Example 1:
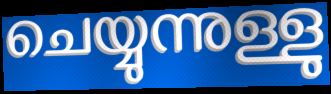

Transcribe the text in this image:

ചെയ്യുന്നുള്ളു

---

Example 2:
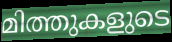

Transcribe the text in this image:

മിത്തുകളുടെ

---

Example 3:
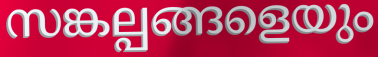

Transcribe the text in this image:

സങ്കല്പങ്ങളെയും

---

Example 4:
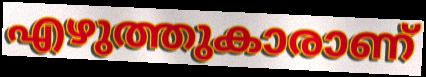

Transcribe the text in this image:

എഴുത്തുകാരാണ്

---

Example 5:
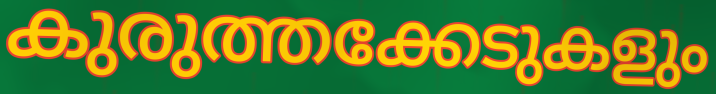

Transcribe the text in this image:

കുരുത്തക്കേടുകളും